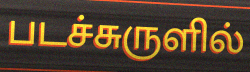
படச்சுருளில்